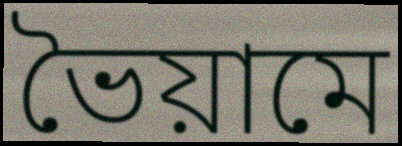
ভৈয়ামে